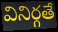
వినిర్గతే